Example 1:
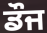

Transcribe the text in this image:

ਡੌਜ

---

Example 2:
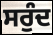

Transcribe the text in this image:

ਸਰੁੰਦ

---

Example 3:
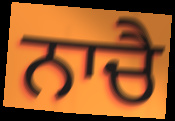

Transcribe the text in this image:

ਨਾਚੈ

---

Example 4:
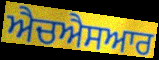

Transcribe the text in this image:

ਐਚਐਸਆਰ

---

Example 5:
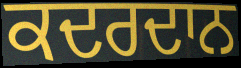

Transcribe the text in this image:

ਕਦਰਦਾਨ